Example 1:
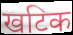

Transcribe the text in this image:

खटिक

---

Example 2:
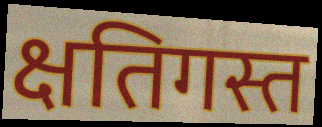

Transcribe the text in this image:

क्षतिगस्त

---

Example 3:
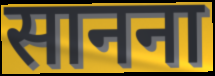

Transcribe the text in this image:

सानना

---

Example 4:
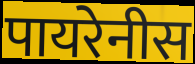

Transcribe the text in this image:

पायरेनीस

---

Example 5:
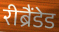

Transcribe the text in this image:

रीब्रैंडेड